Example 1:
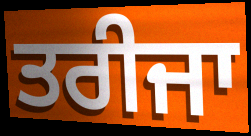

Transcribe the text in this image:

ਤਰੀਜਾ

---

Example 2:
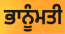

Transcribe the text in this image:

ਭਾਨੂੰਮਤੀ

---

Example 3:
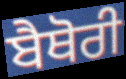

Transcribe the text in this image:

ਬੈਥੋਰੀ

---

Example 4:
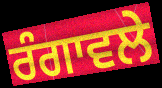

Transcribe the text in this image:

ਰੰਗਾਵਲੇ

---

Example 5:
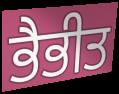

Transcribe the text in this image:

ਭੈਭੀਤ